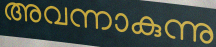
അവന്നാകുന്നു